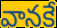
వానకే